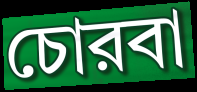
চোরবা